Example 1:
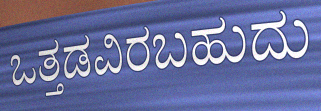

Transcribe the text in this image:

ಒತ್ತಡವಿರಬಹುದು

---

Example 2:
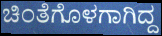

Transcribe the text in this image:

ಚಿಂತೆಗೊಳಗಾಗಿದ್ದ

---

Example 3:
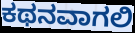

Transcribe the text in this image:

ಕಥನವಾಗಲಿ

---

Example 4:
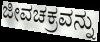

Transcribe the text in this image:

ಜೀವಚಕ್ರವನ್ನು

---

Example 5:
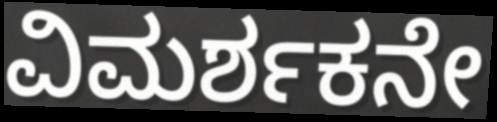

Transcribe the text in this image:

ವಿಮರ್ಶಕನೇ